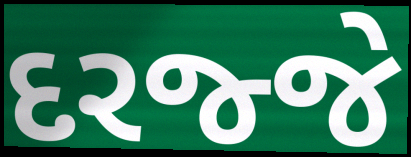
દરજ્જે